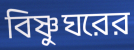
বিষ্ণুঘরের